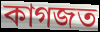
কাগজত